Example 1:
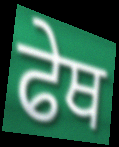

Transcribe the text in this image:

ਫੇਥ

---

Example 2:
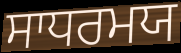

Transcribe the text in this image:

ਸਾਧਰਮਯ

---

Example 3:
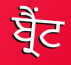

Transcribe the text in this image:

ਬ੍ਰੈਂਟ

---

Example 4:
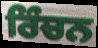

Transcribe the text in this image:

ਰਿੰਚਨ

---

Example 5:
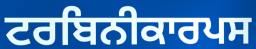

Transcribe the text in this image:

ਟਰਬਿਨੀਕਾਰਪਸ